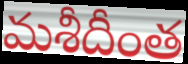
మశీదీంత